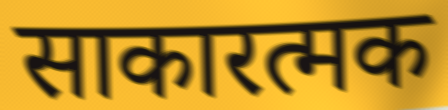
साकारत्मक